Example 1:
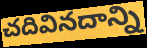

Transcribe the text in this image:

చదివినదాన్ని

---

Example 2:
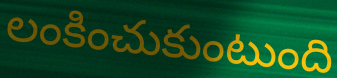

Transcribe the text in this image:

లంకించుకుంటుంది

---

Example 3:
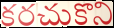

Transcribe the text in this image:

కరచుకొని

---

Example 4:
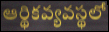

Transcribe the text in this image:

ఆర్థికవ్యవస్థలో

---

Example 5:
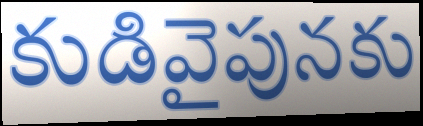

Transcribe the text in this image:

కుడివైపునకు